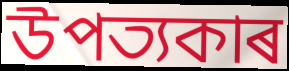
উপত্যকাৰ